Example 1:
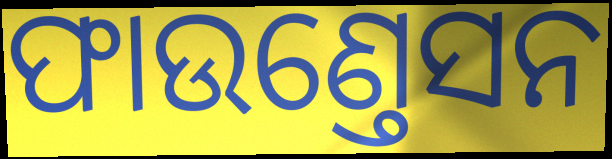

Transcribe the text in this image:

ଫାଉଣ୍ତେସନ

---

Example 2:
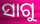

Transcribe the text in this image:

ସାଗୁ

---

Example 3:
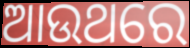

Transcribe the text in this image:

ଆଉଥରେ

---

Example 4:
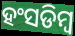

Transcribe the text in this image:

ହଂସଡିମ୍ବ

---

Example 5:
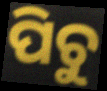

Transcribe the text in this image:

ପିଚୁ